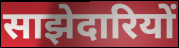
साझेदारियों